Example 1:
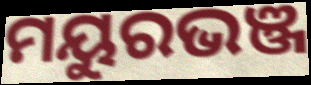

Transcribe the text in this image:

ମୟୁରଭଞ୍ଜ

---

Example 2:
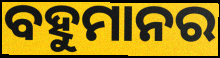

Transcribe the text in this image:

ବହୁମାନର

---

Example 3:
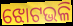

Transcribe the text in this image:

ଝୋଟଭଳି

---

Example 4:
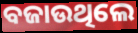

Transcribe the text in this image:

ବଜାଉଥିଲେ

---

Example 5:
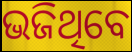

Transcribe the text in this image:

ଭଜିଥିବେ